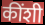
कींशी